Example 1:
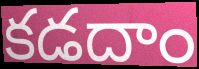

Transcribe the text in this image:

కడదాం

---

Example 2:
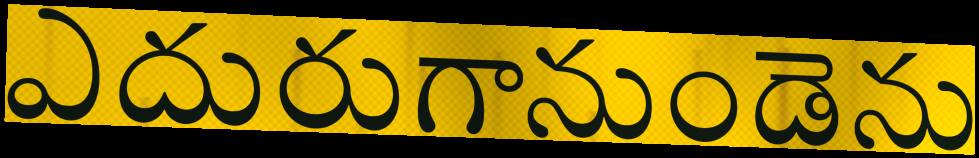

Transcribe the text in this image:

ఎదురుగానుండెను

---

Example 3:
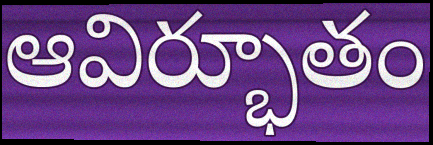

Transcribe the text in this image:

ఆవిర్భూతం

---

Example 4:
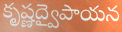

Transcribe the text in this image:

కృష్ణద్వైపాయన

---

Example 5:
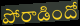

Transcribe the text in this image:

పోరాడిందో